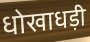
धोखाधड़ी